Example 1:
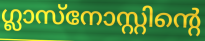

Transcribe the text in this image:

ഗ്ലാസ്നോസ്റ്റിന്റെ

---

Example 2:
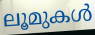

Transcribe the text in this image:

ലൂമുകൾ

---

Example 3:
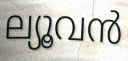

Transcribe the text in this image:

ല്യൂവൻ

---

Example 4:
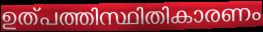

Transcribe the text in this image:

ഉത്പത്തിസ്ഥിതികാരണം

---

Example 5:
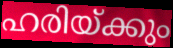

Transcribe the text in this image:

ഹരിയ്ക്കും